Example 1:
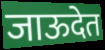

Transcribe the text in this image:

जाऊदेत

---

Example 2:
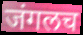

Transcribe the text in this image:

जंगलच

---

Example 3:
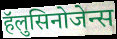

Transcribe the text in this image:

हॅलुसिनोजेन्स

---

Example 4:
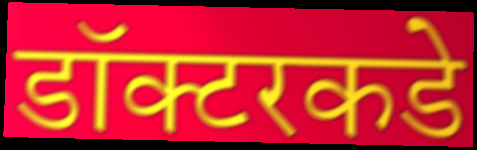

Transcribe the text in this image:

डॉक्टरकडे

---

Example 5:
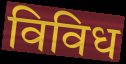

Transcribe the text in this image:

विविध